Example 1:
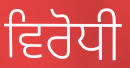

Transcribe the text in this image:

ਵਿਰੋਧੀ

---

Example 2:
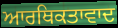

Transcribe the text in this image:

ਆਰਥਿਕਤਾਵਾਦ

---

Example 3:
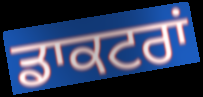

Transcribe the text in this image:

ਡਾਕਟਰਾਂ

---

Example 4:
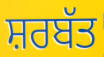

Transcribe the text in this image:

ਸ਼ਰਬੱਤ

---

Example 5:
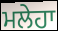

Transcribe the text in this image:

ਮਲੇਹਾ